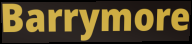
Barrymore